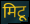
मिटू